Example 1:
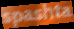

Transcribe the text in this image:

spashta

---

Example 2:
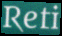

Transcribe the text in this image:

Reti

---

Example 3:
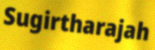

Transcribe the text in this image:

Sugirtharajah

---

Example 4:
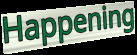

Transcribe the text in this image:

Happening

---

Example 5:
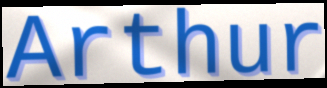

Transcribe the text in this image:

Arthur